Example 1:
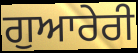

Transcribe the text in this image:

ਗੁਆਰੇਰੀ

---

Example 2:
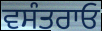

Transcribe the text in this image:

ਵਸੰਤਰਾਓ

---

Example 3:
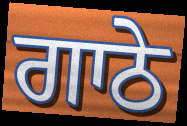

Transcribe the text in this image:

ਗਾਠੇ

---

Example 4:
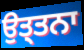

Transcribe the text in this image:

ਉਤ੍ਤਨਾ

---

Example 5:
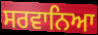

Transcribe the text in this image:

ਸਰਵਾਨਿਆ